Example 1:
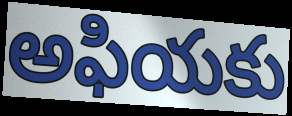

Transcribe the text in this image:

అఫియకు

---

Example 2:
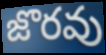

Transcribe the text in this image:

జొరవు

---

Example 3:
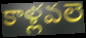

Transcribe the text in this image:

కాళ్లవలె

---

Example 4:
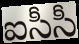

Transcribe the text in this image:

ఐసీసీ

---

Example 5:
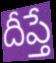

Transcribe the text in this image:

దీప్తే